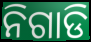
ନିଗାଡି